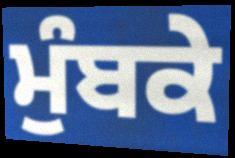
ਮੁੰਬਕੇ